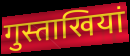
गुस्ताखियां